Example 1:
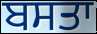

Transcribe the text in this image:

ਬਸਤਾ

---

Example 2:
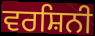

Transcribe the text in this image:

ਵਰਸ਼ਿਨੀ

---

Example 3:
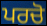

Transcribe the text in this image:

ਪਰਚੋ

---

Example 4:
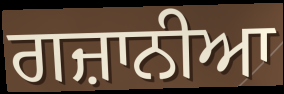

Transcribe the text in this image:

ਗਜ਼ਾਨੀਆ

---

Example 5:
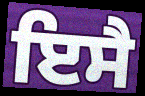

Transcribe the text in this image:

ਇਸੈ